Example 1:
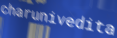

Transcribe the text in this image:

charunivedita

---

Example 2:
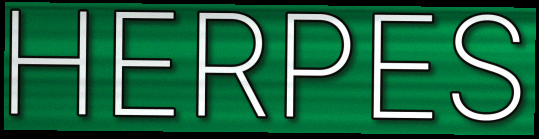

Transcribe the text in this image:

HERPES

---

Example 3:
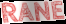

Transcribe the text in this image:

RANE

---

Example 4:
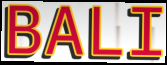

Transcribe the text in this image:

BALI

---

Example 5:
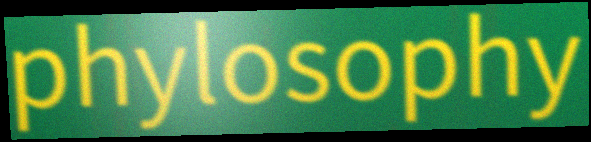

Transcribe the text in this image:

phylosophy